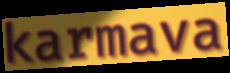
karmava